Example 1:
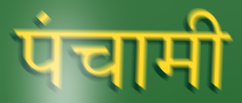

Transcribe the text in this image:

पंचामी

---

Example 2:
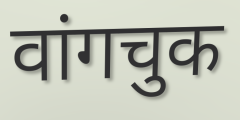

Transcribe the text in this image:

वांगचुक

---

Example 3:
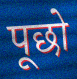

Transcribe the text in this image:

पूछो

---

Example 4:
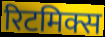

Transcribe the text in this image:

रिटमिक्स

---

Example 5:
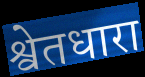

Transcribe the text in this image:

श्वेतधारा